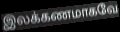
இலக்கணமாகவே